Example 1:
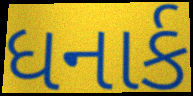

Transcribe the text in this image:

ધનાર્ક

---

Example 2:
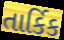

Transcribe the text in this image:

તાર્કિક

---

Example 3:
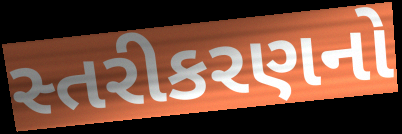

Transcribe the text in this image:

સ્તરીકરણનો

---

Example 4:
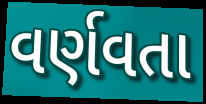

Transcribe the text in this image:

વર્ણવતા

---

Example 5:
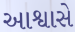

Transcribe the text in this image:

આશ્વાસે